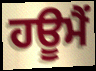
ਹਊਮੈਂ